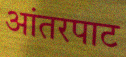
आंतरपाट